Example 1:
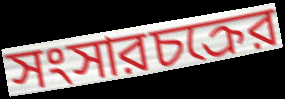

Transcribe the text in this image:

সংসারচক্রের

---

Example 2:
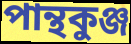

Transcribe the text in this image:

পান্থকুঞ্জ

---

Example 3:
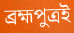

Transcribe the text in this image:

ব্রহ্মপুত্রই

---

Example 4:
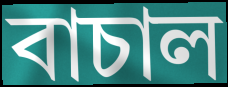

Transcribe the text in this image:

বাচাল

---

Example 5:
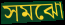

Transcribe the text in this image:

সমঝো